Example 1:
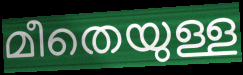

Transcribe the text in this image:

മീതെയുള്ള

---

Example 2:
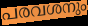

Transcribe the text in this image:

പരവശനും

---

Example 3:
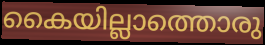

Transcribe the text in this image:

കൈയില്ലാത്തൊരു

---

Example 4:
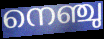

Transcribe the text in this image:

നെഞ്ചു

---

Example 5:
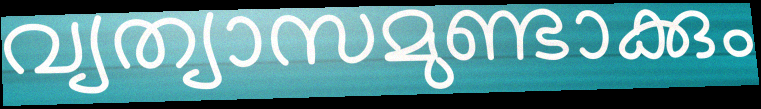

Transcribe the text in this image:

വ്യത്യാസമുണ്ടാക്കും